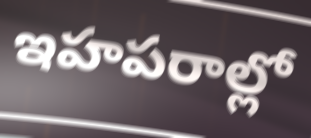
ఇహపరాల్లో